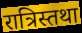
रात्रिस्तथा